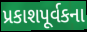
પ્રકાશપૂર્વકના